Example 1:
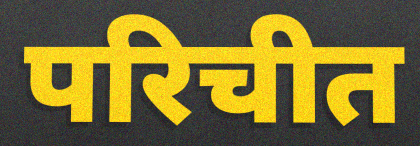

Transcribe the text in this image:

परिचीत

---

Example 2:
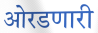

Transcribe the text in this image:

ओरडणारी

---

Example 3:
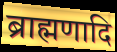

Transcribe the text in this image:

ब्राह्मणादि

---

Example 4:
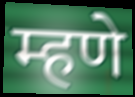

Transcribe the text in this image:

म्हणे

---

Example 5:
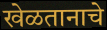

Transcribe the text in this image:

खेळतानाचे